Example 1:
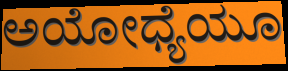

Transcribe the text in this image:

ಅಯೋಧ್ಯೆಯೂ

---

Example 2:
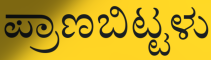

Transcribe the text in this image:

ಪ್ರಾಣಬಿಟ್ಟಳು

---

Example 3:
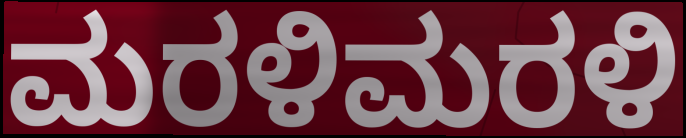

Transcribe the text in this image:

ಮರಳಿಮರಳಿ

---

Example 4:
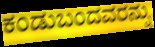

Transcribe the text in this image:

ಕಂಡುಬಂದವರನ್ನು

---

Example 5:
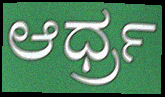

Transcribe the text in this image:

ಆರ್ಧ್ರ